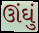
ઊંઘું